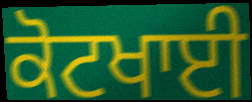
ਕੋਟਖਾਈ